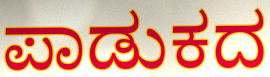
ಪಾಡುಕದ